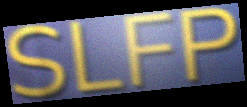
SLFP